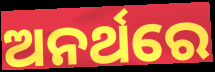
ଅନର୍ଥରେ